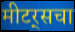
मीटर्सचा